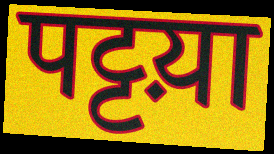
पट्टय़ा